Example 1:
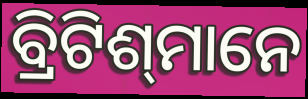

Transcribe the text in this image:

ବ୍ରିଟିଶ୍‍ମାନେ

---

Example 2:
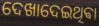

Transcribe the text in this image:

ଦେଖାଦେଇଥିଵା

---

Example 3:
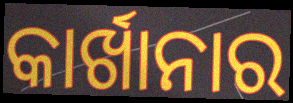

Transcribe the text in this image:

କାର୍ଖାନାର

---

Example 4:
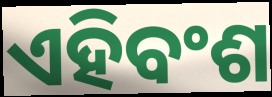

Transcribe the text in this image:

ଏହିବଂଶ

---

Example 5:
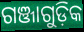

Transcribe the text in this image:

ଗଞ୍ଜାଗୁଡ଼ିକ